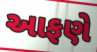
આફણે